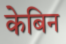
केबिन